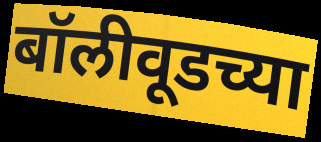
बॉलीवूडच्या